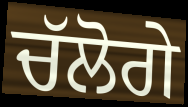
ਚੱਲੋਗੇ